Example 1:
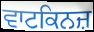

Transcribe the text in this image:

ਵਾਟਕਿਨਜ਼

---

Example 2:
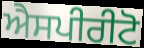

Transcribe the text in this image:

ਐਸਪੀਰੀਟੋ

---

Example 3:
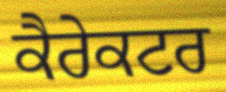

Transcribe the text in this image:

ਕੈਰੇਕਟਰ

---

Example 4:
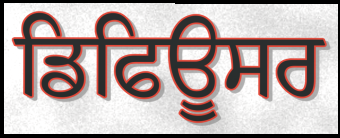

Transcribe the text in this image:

ਡਿਫਿਊਸਰ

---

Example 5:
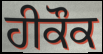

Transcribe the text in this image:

ਹੀਕੌਕ